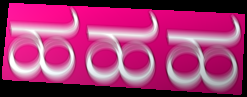
ಹಹಹ